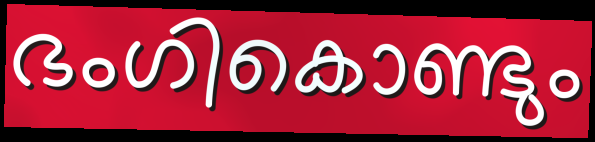
ഭംഗികൊണ്ടും